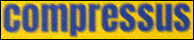
compressus